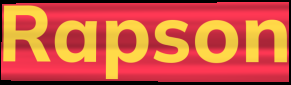
Rapson